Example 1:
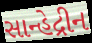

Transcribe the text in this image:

સાન્હેદ્રીન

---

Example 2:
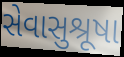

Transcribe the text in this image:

સેવાસુશ્રૂષા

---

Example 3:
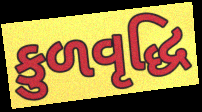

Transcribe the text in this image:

કુળવૃદ્ધિ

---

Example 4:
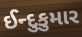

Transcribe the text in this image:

ઈન્દુકુમાર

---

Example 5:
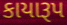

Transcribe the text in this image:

કાયારૂપ